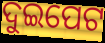
ଦୁଇପେଟ